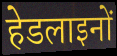
हेडलाइनों